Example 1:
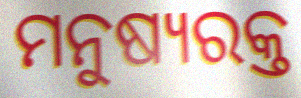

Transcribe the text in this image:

ମନୁଷ୍ଯରକ୍ତ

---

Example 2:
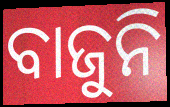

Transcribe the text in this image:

ବାଜୁନି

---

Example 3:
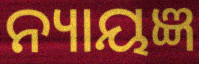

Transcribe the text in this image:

ନ୍ୟାୟଜ୍ଞ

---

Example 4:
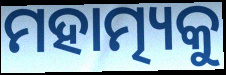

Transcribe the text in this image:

ମହାତ୍ମ୍ୟକୁ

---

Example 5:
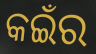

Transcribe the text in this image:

କଇଁର